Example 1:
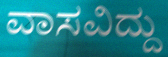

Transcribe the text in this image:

ವಾಸವಿದ್ದು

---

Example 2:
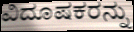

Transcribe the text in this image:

ವಿದೂಷಕರನ್ನು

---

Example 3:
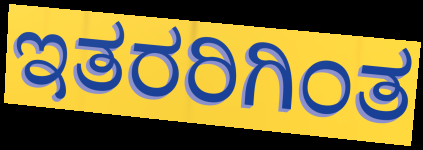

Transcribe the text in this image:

ಇತರರಿಗಿಂತ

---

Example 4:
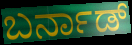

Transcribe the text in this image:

ಬರ್ನಾಡ್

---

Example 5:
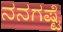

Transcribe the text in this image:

ನನಗಷ್ಟೆ